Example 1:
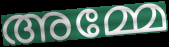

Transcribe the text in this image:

അമ്മേ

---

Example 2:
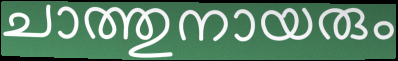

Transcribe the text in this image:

ചാത്തുനായരും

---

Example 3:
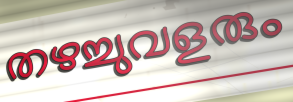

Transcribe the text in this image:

തഴച്ചുവളരും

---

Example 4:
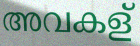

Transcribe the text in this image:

അവകള്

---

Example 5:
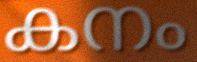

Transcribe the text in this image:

കനം